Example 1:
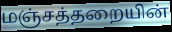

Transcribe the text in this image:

மஞ்சத்தறையின்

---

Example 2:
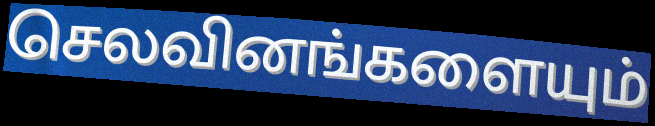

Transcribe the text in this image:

செலவினங்களையும்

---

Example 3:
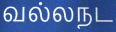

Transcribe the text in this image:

வல்லநட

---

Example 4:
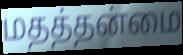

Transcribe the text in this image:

மதத்தன்மை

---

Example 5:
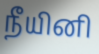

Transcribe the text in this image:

நீயினி